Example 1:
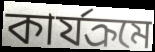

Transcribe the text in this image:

কার্যক্রমে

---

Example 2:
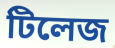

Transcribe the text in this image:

টিলেজ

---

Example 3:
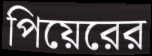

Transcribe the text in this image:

পিয়েরের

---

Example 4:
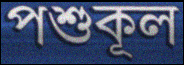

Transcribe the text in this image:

পশুকূল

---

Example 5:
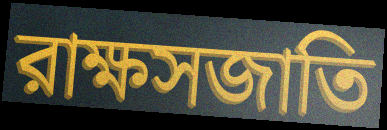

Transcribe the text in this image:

রাক্ষসজাতি